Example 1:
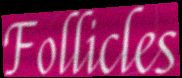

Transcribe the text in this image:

Follicles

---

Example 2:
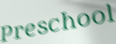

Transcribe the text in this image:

Preschool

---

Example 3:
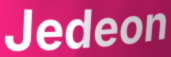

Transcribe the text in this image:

Jedeon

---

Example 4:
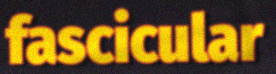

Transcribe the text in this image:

fascicular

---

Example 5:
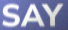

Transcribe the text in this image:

SAY